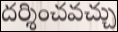
దర్శించవచ్చు